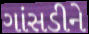
ગાંસડીને